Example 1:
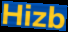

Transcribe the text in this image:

Hizb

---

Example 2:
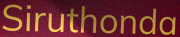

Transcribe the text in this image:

Siruthonda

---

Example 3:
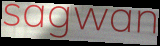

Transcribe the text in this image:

sagwan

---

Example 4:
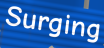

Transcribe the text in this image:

Surging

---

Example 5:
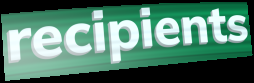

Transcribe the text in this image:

recipients